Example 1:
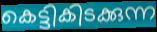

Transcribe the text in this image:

കെട്ടികിടക്കുന്ന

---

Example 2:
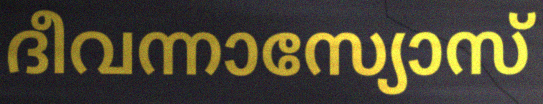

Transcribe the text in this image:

ദീവന്നാസ്യോസ്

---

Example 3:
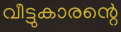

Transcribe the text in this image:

വീട്ടുകാരന്റെ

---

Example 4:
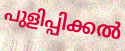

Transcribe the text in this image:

പുളിപ്പിക്കൽ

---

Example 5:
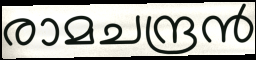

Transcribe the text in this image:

രാമചന്ദ്രൻ